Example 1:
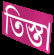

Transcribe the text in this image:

তিস্তা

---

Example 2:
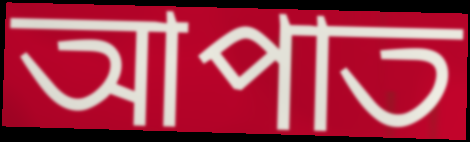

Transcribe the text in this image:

আপাত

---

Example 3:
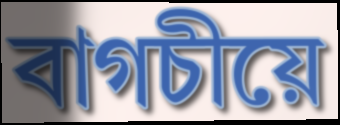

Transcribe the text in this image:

বাগচীয়ে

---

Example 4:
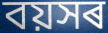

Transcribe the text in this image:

বয়সৰ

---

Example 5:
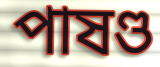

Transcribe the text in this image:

পাষণ্ড